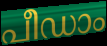
പീഡാം